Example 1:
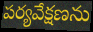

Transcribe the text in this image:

పర్యవేక్షణను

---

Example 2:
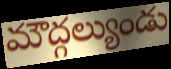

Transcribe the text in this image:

మౌద్గల్యుండు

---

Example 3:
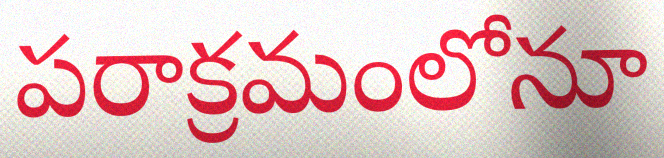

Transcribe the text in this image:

పరాక్రమంలోనూ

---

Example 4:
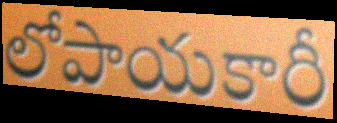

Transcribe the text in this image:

లోపాయకారీ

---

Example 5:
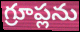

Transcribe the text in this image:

గ్రూప్లను